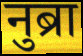
नुब्रा